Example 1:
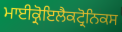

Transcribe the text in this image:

ਮਾਈਕ੍ਰੋਇਲੈਕਟ੍ਰੋਨਿਕਸ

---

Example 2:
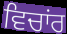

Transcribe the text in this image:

ਵਿਚਾਂਰ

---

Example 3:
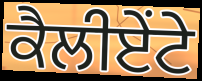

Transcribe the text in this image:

ਕੈਲੀਏਂਟੇ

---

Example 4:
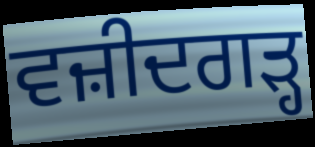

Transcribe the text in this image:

ਵਜ਼ੀਦਗੜ੍ਹ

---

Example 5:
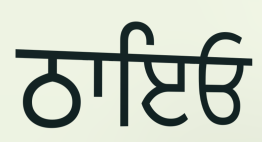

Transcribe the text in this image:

ਠਾਇਓ